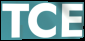
TCE